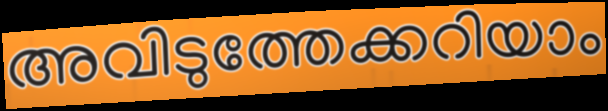
അവിടുത്തേക്കറിയാം